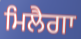
ਮਿਲੈਗਾ